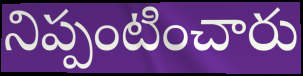
నిప్పంటించారు